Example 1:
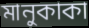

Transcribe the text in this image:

মানুকাকা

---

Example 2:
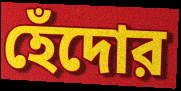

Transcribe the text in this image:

হেঁদোর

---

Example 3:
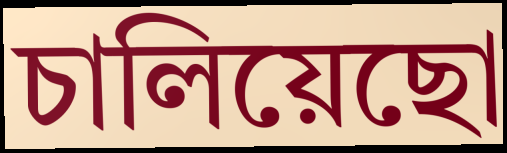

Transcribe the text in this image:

চালিয়েছো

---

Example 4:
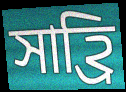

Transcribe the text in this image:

সাহ্রি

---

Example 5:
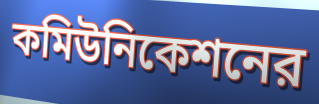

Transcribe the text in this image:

কমিউনিকেশনের